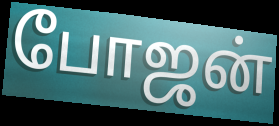
போஜன்